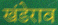
खंडेराव